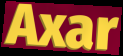
Axar